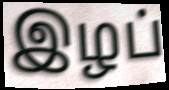
இழப்